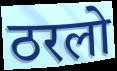
ठरलो